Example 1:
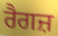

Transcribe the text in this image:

ਰੈਗਜ਼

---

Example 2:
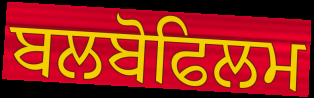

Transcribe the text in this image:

ਬਲਬੋਫਿਲਮ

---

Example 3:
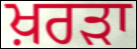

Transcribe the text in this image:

ਖ਼ਰੜਾ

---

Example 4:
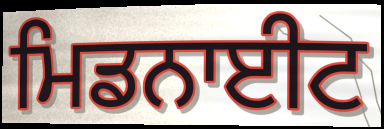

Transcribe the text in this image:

ਮਿਡਨਾਈਟ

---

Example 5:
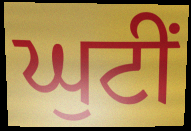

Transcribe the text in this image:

ਘੁਟੀਂ